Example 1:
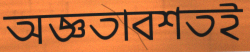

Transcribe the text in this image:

অজ্ঞতাবশতই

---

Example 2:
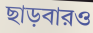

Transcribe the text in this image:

ছাড়বারও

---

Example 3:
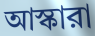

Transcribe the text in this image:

আস্কারা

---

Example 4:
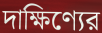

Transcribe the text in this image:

দাক্ষিণ্যের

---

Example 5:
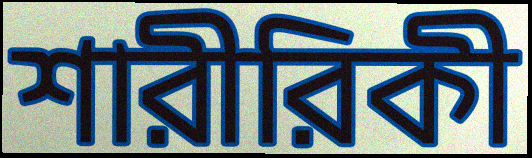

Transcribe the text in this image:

শারীরিকী